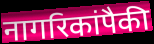
नागरिकांपैकी